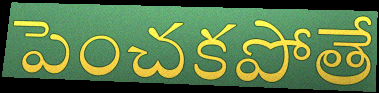
పెంచకపోతే